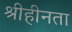
श्रीहीनता